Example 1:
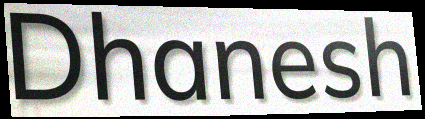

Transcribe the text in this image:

Dhanesh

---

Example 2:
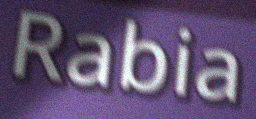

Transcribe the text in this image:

Rabia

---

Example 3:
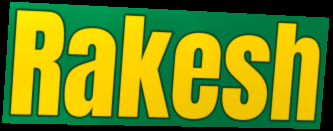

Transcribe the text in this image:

Rakesh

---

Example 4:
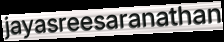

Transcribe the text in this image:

jayasreesaranathan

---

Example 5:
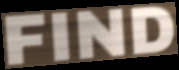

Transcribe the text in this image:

FIND